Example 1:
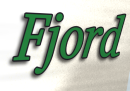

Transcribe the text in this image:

Fjord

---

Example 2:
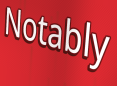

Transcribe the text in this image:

Notably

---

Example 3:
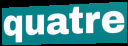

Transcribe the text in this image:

quatre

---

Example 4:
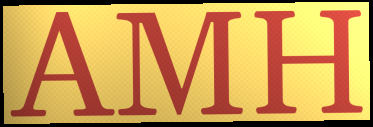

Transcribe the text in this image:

AMH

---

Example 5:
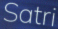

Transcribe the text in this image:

Satri